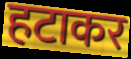
हटाकर